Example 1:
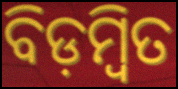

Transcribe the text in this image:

ବିଡ଼ମ୍ଵିତ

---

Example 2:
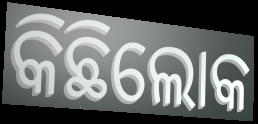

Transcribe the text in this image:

କିଛିଲୋକ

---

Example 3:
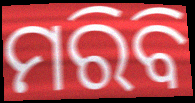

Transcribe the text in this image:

ମରିବି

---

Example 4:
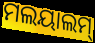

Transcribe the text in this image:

ମଲୟାଲମ୍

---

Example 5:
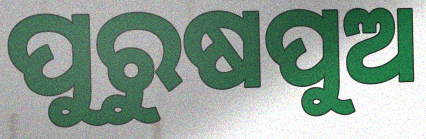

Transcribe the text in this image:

ପୁରୁଷପୁଅ